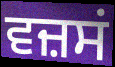
ਵਜ਼ਸਂ